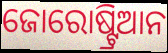
ଜୋରୋଷ୍ଟ୍ରିଆନ